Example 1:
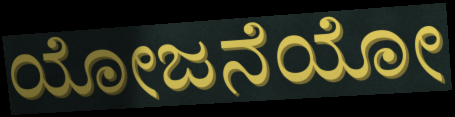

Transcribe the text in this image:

ಯೋಜನೆಯೋ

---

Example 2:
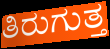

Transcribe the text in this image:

ತಿರುಗುತ್ತ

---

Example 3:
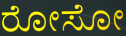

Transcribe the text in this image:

ರೋಸೋ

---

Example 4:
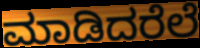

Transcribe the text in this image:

ಮಾಡಿದರೆಲೆ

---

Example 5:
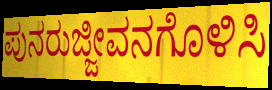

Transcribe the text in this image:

ಪುನರುಜ್ಜೀವನಗೊಳಿಸಿ